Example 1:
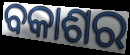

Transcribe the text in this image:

ବକାଶର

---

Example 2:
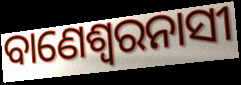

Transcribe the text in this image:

ବାଣେଶ୍ୱରନାସୀ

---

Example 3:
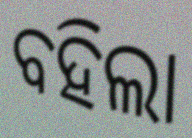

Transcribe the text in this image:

ବହିଲା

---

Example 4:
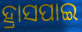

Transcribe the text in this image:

ହ୍ରାସପାଇ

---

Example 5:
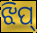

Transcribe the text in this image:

ଝିପ୍